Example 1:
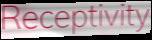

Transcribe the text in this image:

Receptivity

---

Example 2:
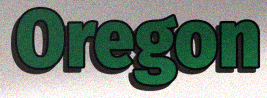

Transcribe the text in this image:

Oregon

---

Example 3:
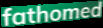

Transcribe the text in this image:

fathomed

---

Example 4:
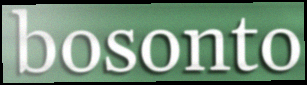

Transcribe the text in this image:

bosonto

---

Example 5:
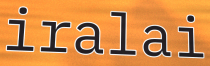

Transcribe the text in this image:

iralai